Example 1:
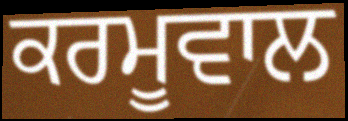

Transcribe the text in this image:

ਕਰਮੂਵਾਲ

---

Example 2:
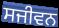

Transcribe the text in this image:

ਸਜੀਵਨ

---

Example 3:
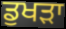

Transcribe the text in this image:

ਡੁਖੜਾ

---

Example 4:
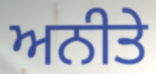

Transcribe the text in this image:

ਅਨੀਤੇ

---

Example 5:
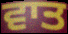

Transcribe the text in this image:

ਵਾਤ